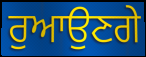
ਰੁਆਉਣਗੇ